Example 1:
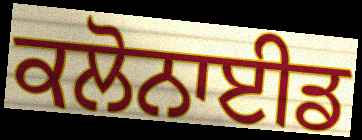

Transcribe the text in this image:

ਕਲੋਨਾਈਡ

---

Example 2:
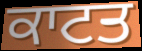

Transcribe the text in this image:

ਕਾਟਤ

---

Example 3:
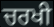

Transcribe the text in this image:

ਚਰਖੀ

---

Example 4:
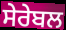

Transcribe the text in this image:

ਸੇਰੇਬਲ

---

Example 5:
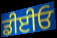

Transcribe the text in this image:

ਡੀਈਓ